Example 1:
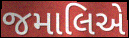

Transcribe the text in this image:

જમાલિએ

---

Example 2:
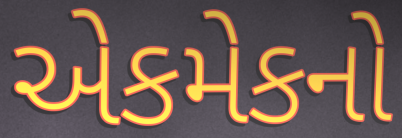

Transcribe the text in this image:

એકમેકનો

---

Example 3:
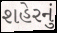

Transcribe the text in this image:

શહેરનું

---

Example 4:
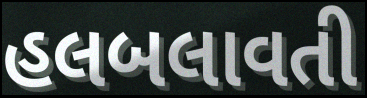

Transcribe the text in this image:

હલબલાવતી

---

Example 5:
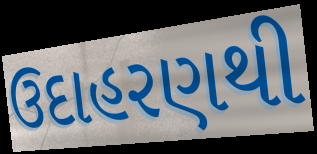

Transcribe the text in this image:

ઉદાહરણથી